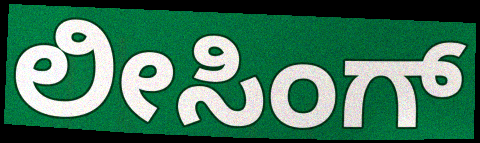
ಲೀಸಿಂಗ್